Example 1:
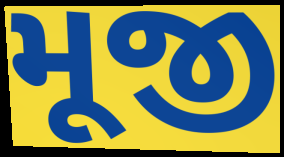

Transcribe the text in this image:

મૂજી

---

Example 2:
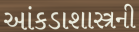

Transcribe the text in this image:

આંકડાશાસ્ત્રની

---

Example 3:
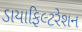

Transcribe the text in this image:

ડાયાફિલ્ટરેશન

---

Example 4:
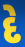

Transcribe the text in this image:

દે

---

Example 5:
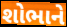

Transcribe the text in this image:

શોભાને